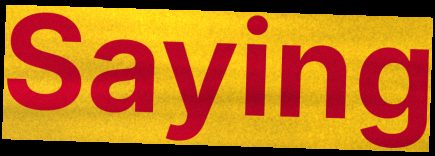
Saying